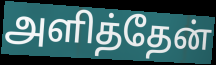
அளித்தேன்